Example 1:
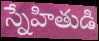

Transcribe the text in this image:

స్నేహితుడి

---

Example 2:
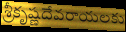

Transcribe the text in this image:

శ్రీకృష్ణదేవరాయలకు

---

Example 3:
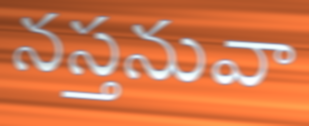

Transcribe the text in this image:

నస్తనువా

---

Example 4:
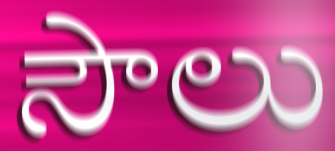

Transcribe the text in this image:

సౌలు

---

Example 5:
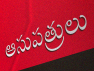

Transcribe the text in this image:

ఆసుపత్రులు